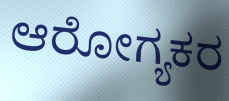
ಆರೋಗ್ಯಕರ